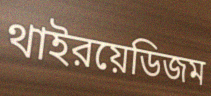
থাইরয়েডিজম